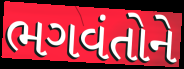
ભગવંતોને